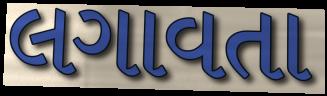
લગાવતા